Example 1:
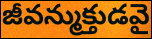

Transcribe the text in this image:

జీవన్ముక్తుడవై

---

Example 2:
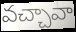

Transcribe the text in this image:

వచ్చావా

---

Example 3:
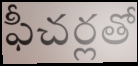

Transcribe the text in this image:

ఫీచర్లతో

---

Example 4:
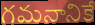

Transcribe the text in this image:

గమనానికే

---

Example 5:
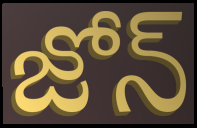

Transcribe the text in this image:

జోన్